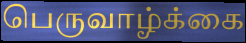
பெருவாழ்க்கை